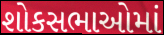
શોકસભાઓમાં